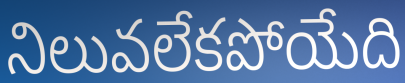
నిలువలేకపోయేది